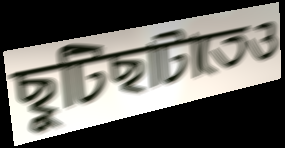
ছুটিছাটাতেও